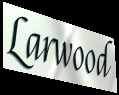
Larwood